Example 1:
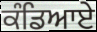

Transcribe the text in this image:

ਕੰਡਿਆਏ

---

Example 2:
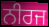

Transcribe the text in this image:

ਨੀਰਜ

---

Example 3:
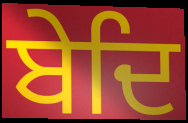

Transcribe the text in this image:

ਬੇਦਿ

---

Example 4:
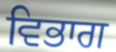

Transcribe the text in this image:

ਵਿਭਾਗ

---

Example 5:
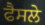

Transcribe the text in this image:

ਫੈਸਲੇ